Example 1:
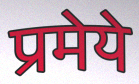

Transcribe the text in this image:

प्रमेये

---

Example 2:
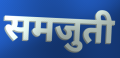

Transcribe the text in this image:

समजुती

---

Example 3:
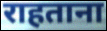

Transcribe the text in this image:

राहताना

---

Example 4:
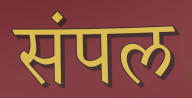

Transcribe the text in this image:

संपल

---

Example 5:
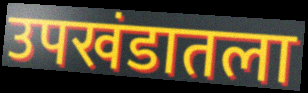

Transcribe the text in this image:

उपखंडातला